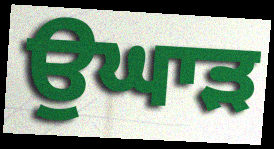
ਉਘਾੜ